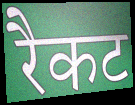
रैकट